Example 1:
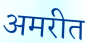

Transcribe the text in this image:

अमरीत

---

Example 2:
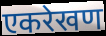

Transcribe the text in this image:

एकरेखण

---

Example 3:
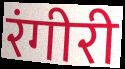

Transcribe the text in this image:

रंगीरी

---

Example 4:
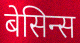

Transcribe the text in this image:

बेसिन्स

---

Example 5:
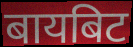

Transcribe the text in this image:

बायबिट